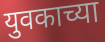
युवकाच्या